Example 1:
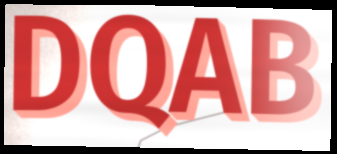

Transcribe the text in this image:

DQAB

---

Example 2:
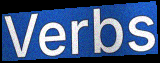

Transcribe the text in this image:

Verbs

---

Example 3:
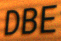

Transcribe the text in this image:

DBE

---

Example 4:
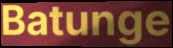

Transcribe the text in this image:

Batunge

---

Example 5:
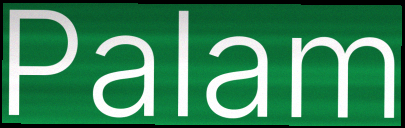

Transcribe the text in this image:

Palam